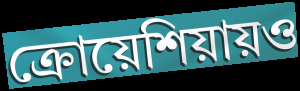
ক্রোয়েশিয়ায়ও